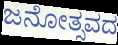
ಜನೋತ್ಸವದ